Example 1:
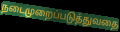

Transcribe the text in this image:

நடைமுறைப்படுத்துவதை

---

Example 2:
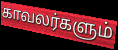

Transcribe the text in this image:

காவலர்களும்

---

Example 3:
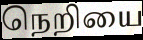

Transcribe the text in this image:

நெறியை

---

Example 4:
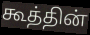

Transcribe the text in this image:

கூத்தின்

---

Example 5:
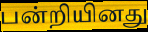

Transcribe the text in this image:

பன்றியினது